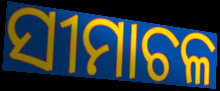
ସୀମାଚଳ